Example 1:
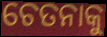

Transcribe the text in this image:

ଚେତନାକୁ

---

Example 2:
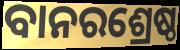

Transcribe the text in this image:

ବାନରଶ୍ରେଷ୍ଠ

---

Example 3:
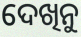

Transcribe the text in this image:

ଦେଖିନୁ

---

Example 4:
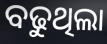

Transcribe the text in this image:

ବଢୁଥିଲା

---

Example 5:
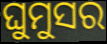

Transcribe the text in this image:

ଘୁମୁସର